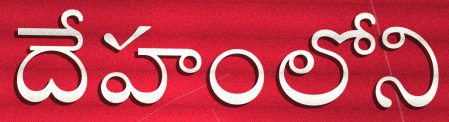
దేహంలోని